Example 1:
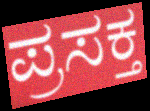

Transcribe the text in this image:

ಪ್ರಸಕ್ತ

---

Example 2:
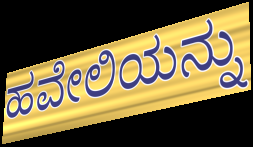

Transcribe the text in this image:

ಹವೇಲಿಯನ್ನು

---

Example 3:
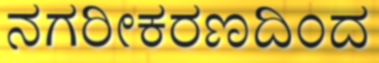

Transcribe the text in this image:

ನಗರೀಕರಣದಿಂದ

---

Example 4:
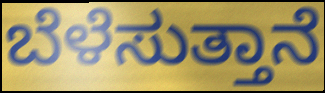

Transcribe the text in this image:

ಬೆಳೆಸುತ್ತಾನೆ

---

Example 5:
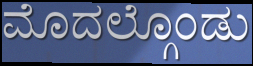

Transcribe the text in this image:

ಮೊದಲ್ಗೊಂಡು